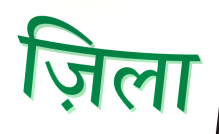
ज़िला